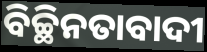
ବିଚ୍ଛିନତାବାଦୀ